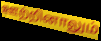
ஊற்றினாலும்